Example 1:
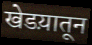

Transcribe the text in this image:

खेडय़ातून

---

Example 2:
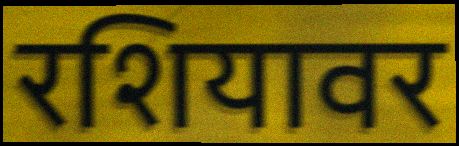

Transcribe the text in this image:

रशियावर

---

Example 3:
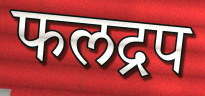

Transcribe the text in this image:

फलद्रप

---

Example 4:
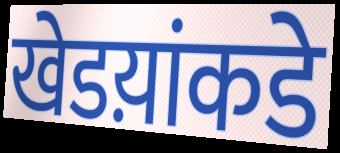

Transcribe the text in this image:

खेडय़ांकडे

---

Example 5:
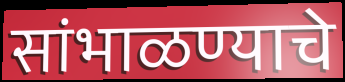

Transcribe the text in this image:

सांभाळण्याचे